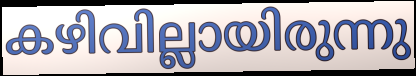
കഴിവില്ലായിരുന്നു